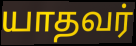
யாதவர்